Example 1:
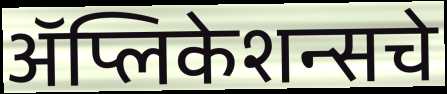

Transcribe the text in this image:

ॲप्लिकेशन्सचे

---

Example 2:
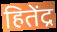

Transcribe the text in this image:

हितेंद्र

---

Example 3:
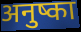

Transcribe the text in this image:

अनुष्का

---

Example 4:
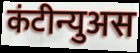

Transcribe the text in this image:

कंटीन्युअस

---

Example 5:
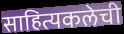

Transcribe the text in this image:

साहित्यकलेची